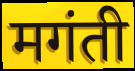
मगंती